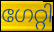
ഗേറ്റി